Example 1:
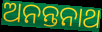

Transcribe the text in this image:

ଅନନ୍ତନାଥ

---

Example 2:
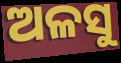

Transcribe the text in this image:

ଅଳସୁ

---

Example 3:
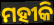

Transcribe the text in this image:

ମହୀକି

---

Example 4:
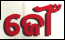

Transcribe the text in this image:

ଜୌଁ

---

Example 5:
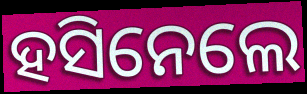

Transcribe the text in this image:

ହସିନେଲେ